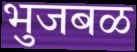
भुजबळ